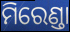
ମିରେଣ୍ଡା